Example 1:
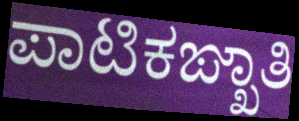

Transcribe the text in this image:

ಪಾಟಿಕಙ್ಖಾತಿ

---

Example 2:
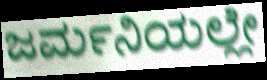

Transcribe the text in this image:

ಜರ್ಮನಿಯಲ್ಲೇ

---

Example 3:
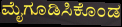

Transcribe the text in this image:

ಮೈಗೂಡಿಸಿಕೊಂಡ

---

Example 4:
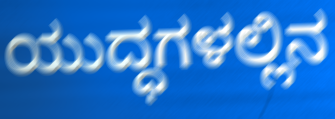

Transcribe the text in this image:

ಯುದ್ಧಗಳಲ್ಲಿನ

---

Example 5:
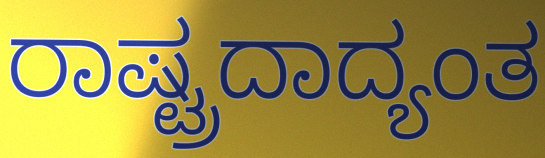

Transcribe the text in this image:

ರಾಷ್ಟ್ರದಾದ್ಯಂತ